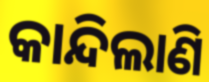
କାନ୍ଦିଲାଣି